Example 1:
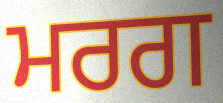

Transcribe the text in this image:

ਮਰਗ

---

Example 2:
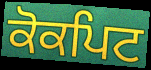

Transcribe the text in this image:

ਕੋਕਪਿਟ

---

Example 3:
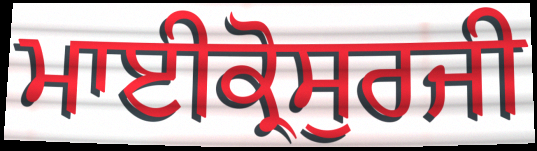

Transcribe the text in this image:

ਮਾਈਕ੍ਰੋਸੁਰਜੀ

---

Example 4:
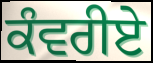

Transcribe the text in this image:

ਕੰਵਰੀਏ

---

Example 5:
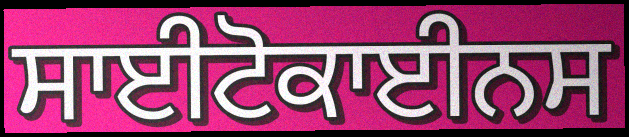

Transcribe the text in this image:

ਸਾਈਟੋਕਾਈਨਸ